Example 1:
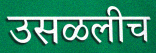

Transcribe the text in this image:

उसळलीच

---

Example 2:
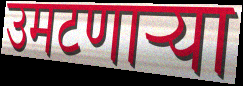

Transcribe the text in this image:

उमटणाऱ्या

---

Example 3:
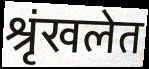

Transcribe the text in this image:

श्रृंखलेत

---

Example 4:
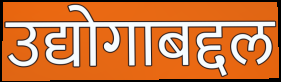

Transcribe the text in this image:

उद्योगाबद्दल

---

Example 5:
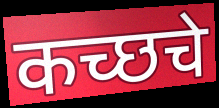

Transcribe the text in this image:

कच्छचे